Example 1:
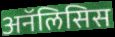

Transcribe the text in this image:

अनॅलिसिस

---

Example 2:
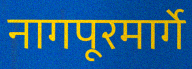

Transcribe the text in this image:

नागपूरमार्गे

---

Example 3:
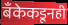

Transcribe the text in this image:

बँकेकडूनही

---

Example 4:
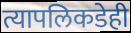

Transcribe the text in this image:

त्यापलिकडेही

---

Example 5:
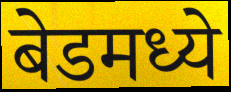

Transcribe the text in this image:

बेडमध्ये